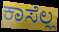
ಕಾಸೆಲ್ಲ